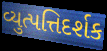
વ્યુત્પત્તિદર્શક